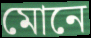
মোনে